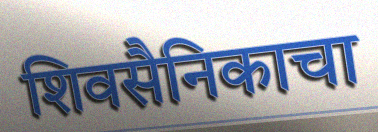
शिवसैनिकाचा